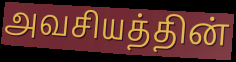
அவசியத்தின்